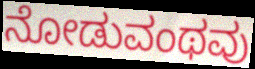
ನೋಡುವಂಥವು